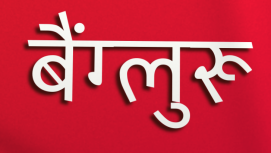
बैंग्लुरू